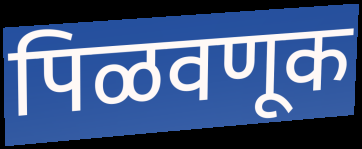
पिळवणूक